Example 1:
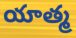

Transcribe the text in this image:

యాత్మ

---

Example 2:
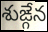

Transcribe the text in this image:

శుఙ్గేన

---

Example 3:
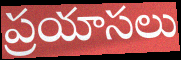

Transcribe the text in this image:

ప్రయాసలు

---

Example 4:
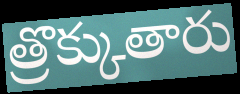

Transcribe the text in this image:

త్రొక్కుతారు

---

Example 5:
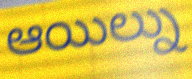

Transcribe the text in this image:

ఆయిల్ను